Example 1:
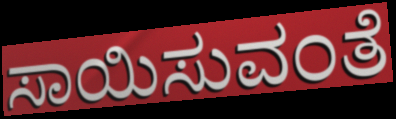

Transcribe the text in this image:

ಸಾಯಿಸುವಂತೆ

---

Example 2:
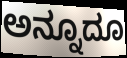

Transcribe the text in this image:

ಅನ್ನೂದೂ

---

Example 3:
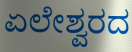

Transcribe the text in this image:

ಏಲೇಶ್ವರದ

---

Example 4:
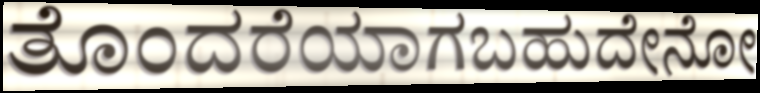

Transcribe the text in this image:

ತೊಂದರೆಯಾಗಬಹುದೇನೋ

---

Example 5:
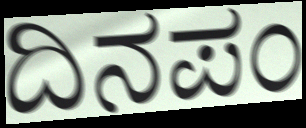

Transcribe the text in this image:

ದಿನಪಂ